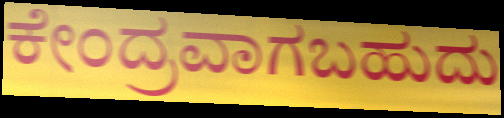
ಕೇಂದ್ರವಾಗಬಹುದು